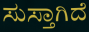
ಸುಸ್ತಾಗಿದೆ